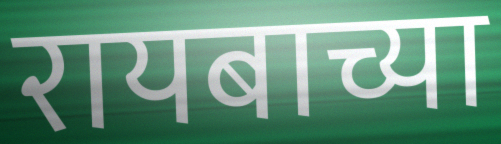
रायबाच्या